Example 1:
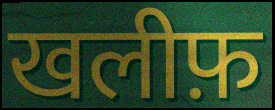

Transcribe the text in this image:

खलीफ़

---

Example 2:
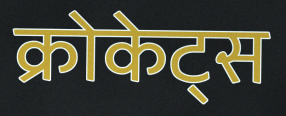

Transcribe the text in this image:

क्रोकेट्स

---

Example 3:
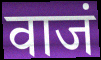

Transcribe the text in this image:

वाजं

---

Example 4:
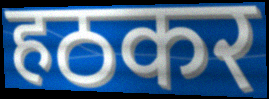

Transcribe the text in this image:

हठकर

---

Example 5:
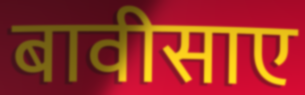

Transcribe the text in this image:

बावीसाए